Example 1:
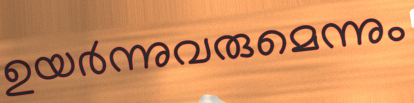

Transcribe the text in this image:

ഉയർന്നുവരുമെന്നും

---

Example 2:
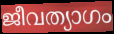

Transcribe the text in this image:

ജീവത്യാഗം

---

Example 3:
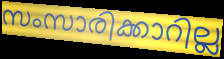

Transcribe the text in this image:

സംസാരിക്കാറില്ല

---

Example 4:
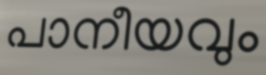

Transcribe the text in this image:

പാനീയവും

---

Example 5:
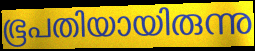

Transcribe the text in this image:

ഭൂപതിയായിരുന്നു